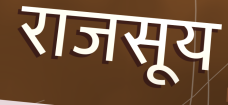
राजसूय